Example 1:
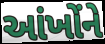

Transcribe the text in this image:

આંખોંને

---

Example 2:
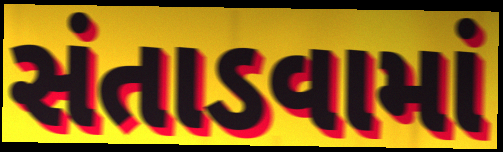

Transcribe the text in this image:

સંતાડવામાં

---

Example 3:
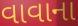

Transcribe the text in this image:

વાવાના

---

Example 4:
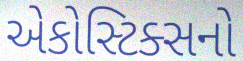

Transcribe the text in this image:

એકોસ્ટિક્સનો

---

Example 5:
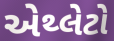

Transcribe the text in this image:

એથ્લેટો